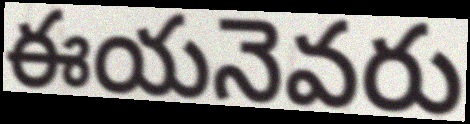
ఈయనెవరు